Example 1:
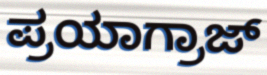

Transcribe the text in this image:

ಪ್ರಯಾಗ್ರಾಜ್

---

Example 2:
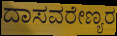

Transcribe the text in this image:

ದಾಸವರೇಣ್ಯರ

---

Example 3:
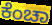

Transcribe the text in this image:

ಕೆಂಚಾ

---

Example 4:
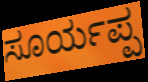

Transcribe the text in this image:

ಸೂರ್ಯಪ್ಪ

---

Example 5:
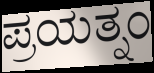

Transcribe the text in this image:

ಪ್ರಯತ್ನಂ